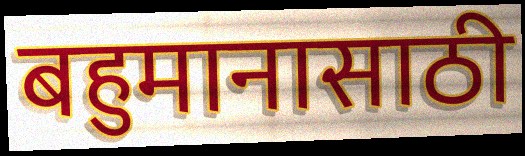
बहुमानासाठी